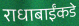
राधाबाईंकडे